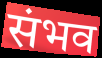
संभव